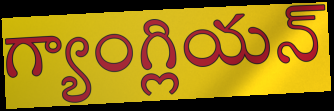
గ్యాంగ్లియన్